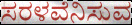
ಸರಳವೆನಿಸುವ